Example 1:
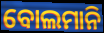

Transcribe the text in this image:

ବୋଲମାନି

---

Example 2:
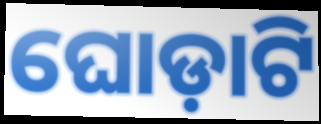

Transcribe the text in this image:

ଘୋଡ଼ାଟି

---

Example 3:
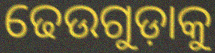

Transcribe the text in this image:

ଢେଉଗୁଡ଼ାକୁ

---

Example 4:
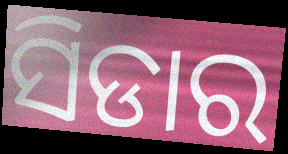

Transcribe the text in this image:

ସିଡାର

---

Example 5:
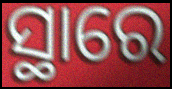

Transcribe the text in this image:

ସ୍ଥାରେ